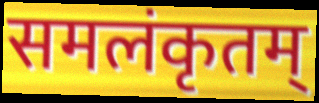
समलंकृतम्